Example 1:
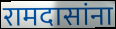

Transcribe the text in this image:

रामदासांना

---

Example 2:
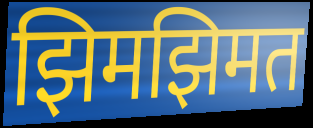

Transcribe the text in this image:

झिमझिमत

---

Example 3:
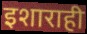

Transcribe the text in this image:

इशाराही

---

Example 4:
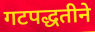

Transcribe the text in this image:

गटपद्धतीने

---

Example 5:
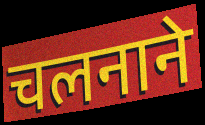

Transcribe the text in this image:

चलनाने